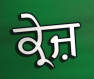
ਕ੍ਰੇਜ਼